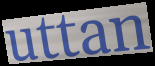
uttan